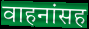
वाहनांसह